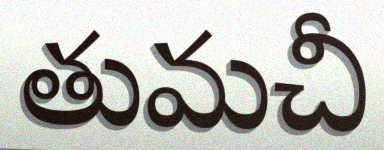
తుమచీ